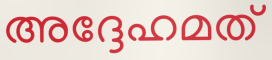
അദ്ദേഹമത്